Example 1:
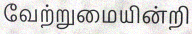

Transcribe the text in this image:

வேற்றுமையின்றி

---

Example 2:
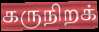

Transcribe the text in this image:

கருநிறக்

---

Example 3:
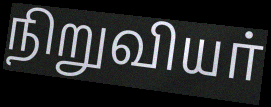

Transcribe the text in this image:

நிறுவியர்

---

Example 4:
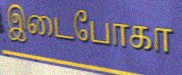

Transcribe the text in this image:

இடைபோகா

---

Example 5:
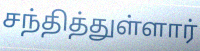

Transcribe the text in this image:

சந்தித்துள்ளார்